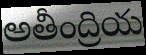
అతీంద్రియ